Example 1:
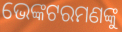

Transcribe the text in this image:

ଭେଙ୍କଟରମଣଙ୍କୁ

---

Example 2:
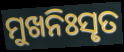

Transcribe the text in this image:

ମୁଖନିଃସୃତ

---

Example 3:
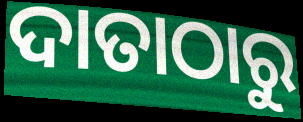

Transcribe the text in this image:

ଦାତାଠାରୁ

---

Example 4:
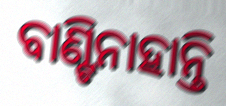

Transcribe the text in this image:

ବାଣ୍ଟିନାହାନ୍ତି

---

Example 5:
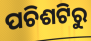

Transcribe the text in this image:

ପଚିଶଟିରୁ